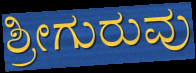
ಶ್ರೀಗುರುವು